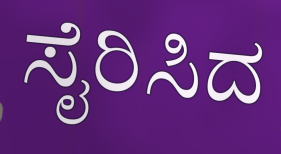
ಸೈರಿಸಿದ